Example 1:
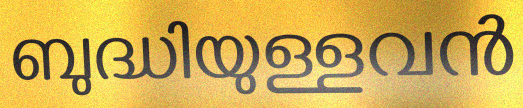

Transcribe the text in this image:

ബുദ്ധിയുള്ളവൻ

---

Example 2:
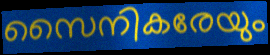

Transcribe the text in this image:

സൈനികരേയും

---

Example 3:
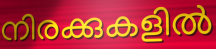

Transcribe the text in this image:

നിരക്കുകളിൽ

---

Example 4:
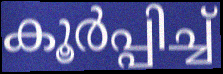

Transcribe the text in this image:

കൂർപ്പിച്ച്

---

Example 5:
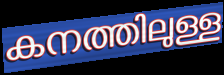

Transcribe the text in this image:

കനത്തിലുള്ള